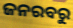
ଜନରବରୁ